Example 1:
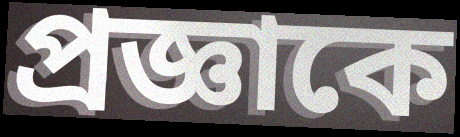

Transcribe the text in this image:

প্রজ্ঞাকে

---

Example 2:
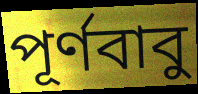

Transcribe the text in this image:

পূর্ণবাবু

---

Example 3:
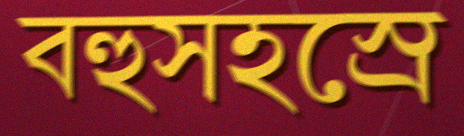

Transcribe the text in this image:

বহুসহস্রে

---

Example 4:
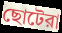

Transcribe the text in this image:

ছোটেরা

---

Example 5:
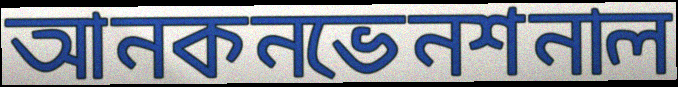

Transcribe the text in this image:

আনকনভেনশনাল